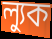
ল্যুক